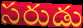
సరుడు